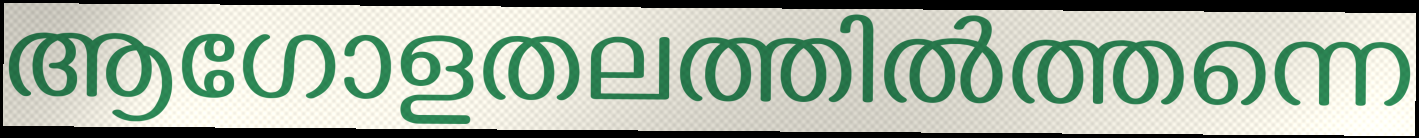
ആഗോളതലത്തിൽത്തന്നെ